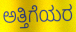
ಅತ್ತಿಗೆಯರ